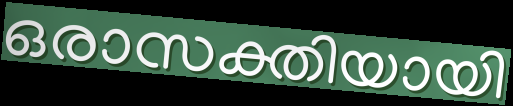
ഒരാസക്തിയായി